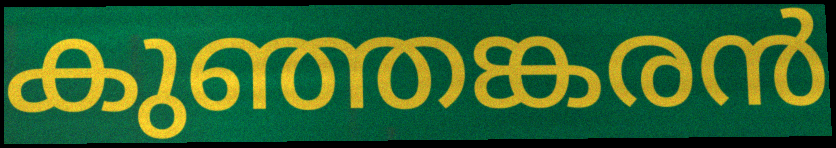
കുഞ്ഞങ്കരൻ